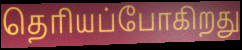
தெரியப்போகிறது